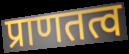
प्राणतत्व